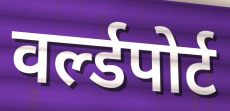
वर्ल्डपोर्ट